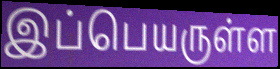
இப்பெயருள்ள